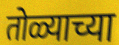
तोळ्याच्या